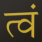
त्वं